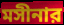
মসীনার